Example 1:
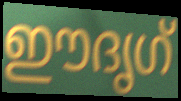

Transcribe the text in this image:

ഈദൃഗ്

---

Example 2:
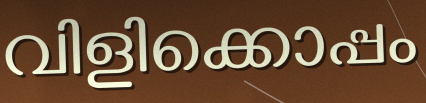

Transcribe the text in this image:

വിളിക്കൊപ്പം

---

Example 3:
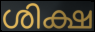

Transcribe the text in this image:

ശിക്ഷ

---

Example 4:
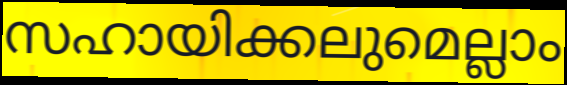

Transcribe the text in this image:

സഹായിക്കലുമെല്ലാം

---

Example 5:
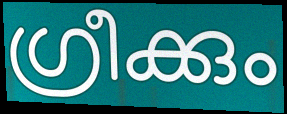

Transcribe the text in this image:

ഗ്രീക്കും